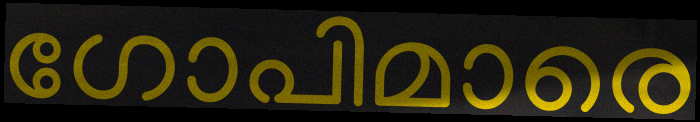
ഗോപിമാരെ